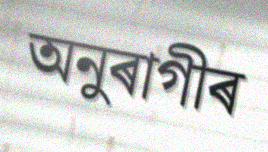
অনুৰাগীৰ